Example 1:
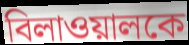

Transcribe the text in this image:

বিলাওয়ালকে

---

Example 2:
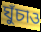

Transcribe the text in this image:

ঘুঁচাও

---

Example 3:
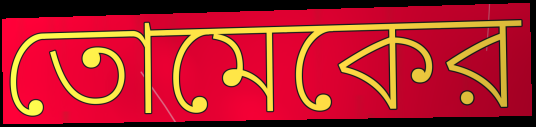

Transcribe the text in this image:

তোমেকের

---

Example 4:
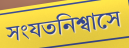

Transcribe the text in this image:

সংযতনিশ্বাসে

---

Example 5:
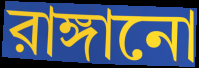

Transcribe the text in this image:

রাঙ্গানো